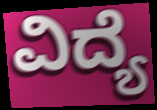
ವಿದ್ಯೆ